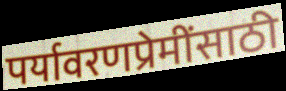
पर्यावरणप्रेमींसाठी